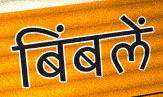
बिंबलें